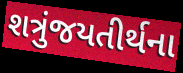
શત્રુંજયતીર્થના